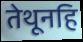
तेथूनहि